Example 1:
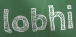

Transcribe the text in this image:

lobhi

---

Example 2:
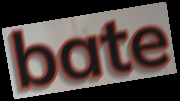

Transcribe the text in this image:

bate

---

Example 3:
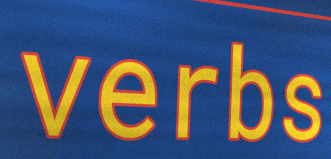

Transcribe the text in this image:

verbs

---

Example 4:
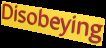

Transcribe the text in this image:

Disobeying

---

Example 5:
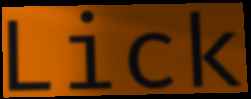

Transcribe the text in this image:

Lick